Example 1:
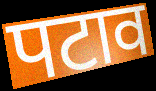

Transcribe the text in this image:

पटाव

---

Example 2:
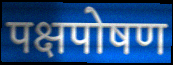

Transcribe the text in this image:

पक्षपोषण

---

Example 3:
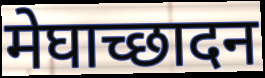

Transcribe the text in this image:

मेघाच्छादन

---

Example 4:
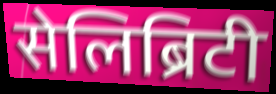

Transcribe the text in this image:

सेलिब्रिटी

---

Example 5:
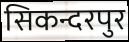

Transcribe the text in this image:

सिकन्दरपुर